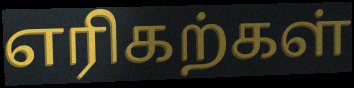
எரிகற்கள்